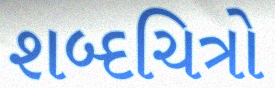
શબ્દચિત્રો